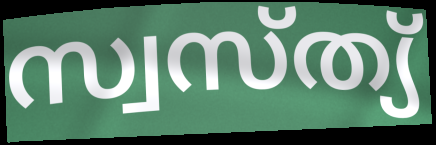
സ്വസ്ത്യ്